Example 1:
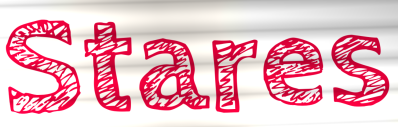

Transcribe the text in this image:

Stares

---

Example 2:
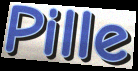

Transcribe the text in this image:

Pille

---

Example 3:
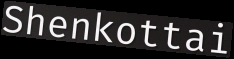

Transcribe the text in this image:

Shenkottai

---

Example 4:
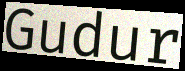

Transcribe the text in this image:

Gudur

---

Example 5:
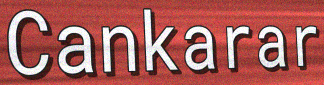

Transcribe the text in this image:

Cankarar